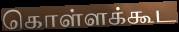
கொள்ளக்கூட